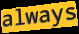
always